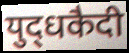
युद्धकैदी